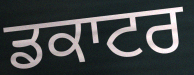
ਡਕਾਟਰ